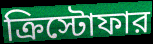
ক্রিস্টোফার